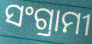
ସଂଗ୍ରାମୀ